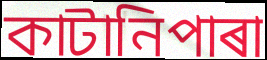
কাটানিপাৰা